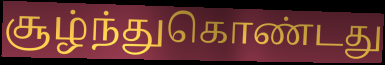
சூழ்ந்துகொண்டது